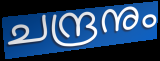
ചന്ദ്രനും